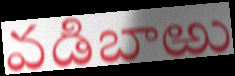
వడిబాఱు